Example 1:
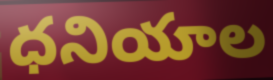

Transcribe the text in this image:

ధనియాల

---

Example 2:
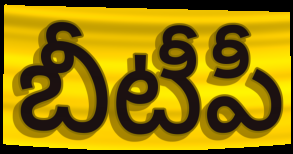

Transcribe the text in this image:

బీటీపీ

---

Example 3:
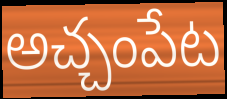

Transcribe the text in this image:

అచ్చంపేట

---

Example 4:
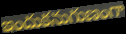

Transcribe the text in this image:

ఇందుకనుగుణంగా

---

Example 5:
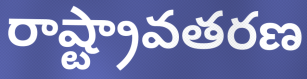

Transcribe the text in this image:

రాష్ట్రావతరణ